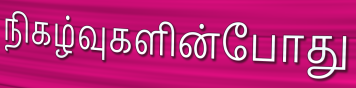
நிகழ்வுகளின்போது